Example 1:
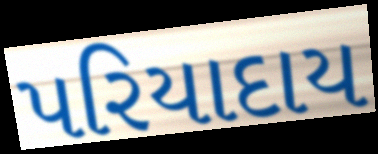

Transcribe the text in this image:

પરિયાદાય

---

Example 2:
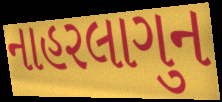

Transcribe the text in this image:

નાહરલાગુન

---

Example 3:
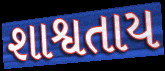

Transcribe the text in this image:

શાશ્વતાય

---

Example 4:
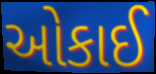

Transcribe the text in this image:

ઓકાઈ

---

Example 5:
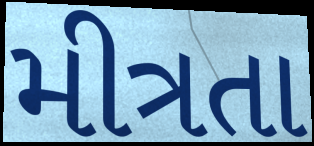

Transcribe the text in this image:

મીત્રતા